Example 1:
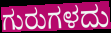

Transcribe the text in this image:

ಗುರುಗಳದು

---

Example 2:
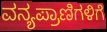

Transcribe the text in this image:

ವನ್ಯಪ್ರಾಣಿಗಳಿಗೆ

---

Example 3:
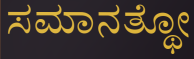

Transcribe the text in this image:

ಸಮಾನತ್ಥೋ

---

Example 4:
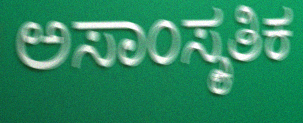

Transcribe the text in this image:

ಅಸಾಂಸ್ಕೃತಿಕ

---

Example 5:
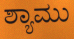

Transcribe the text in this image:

ಶ್ಯಾಮು